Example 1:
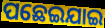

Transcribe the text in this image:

ପଛେଇଯାଇ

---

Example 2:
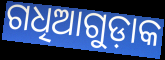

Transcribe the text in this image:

ଗଧିଆଗୁଡ଼ାକ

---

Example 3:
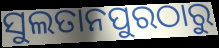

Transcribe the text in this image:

ସୁଲତାନପୁରଠାରୁ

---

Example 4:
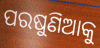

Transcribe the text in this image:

ପରଷୁଣିଆକୁ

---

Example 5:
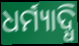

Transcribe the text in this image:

ଧର୍ମ୍ୟାଦ୍ଧି